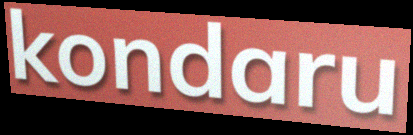
kondaru